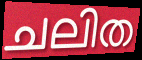
ചലിത